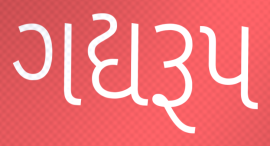
ગદ્યરૂપ